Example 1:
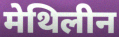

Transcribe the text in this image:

मेथिलीन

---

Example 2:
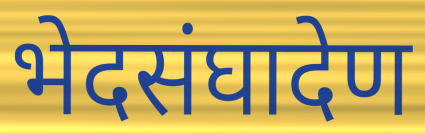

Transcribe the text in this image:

भेदसंघादेण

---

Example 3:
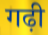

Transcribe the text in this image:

गढ़ी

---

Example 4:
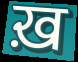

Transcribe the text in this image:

ख़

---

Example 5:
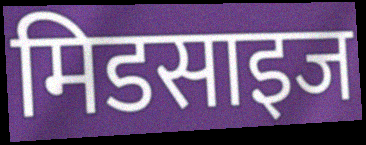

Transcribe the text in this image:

मिडसाइज